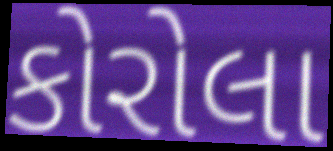
કોરોલા